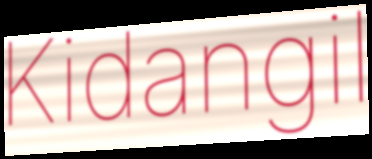
Kidangil